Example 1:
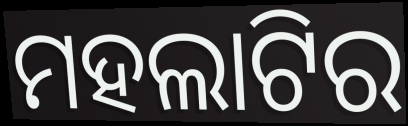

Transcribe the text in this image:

ମହଲାଟିର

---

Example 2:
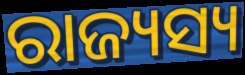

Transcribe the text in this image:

ରାଜ୍ୟସ୍ୟ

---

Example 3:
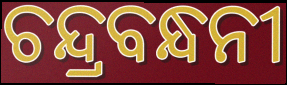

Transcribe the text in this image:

ଚନ୍ଦ୍ରବନ୍ଧନୀ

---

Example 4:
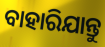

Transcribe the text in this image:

ବାହାରିଯାନ୍ତୁ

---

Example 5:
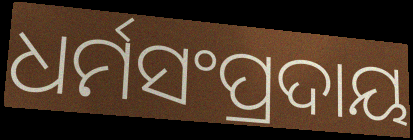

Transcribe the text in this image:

ଧର୍ମସଂପ୍ରଦାୟ